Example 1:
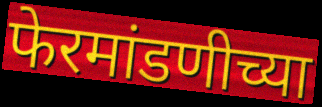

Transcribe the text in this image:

फेरमांडणीच्या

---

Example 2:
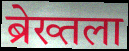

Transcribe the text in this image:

ब्रेख्तला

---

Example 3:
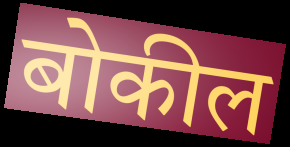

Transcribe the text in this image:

बोकील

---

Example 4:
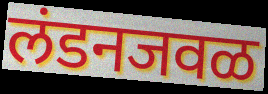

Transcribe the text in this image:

लंडनजवळ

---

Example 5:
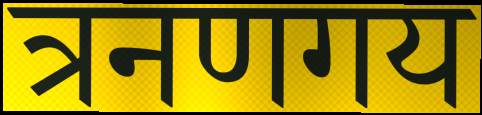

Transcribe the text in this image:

त्रनणगय